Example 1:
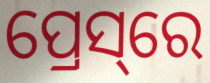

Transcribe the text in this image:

ପ୍ରେସ୍‌ରେ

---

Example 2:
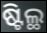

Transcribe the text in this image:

ଷ୍ଟିଲ୍ଥ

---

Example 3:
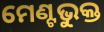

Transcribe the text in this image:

ମେଣ୍ଟଭୁକ୍ତ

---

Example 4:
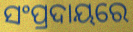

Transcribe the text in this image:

ସଂପ୍ରଦାୟରେ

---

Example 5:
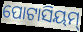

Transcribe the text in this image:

ପୋଟାସିୟମ୍